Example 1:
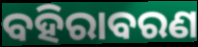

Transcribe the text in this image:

ବହିରାବରଣ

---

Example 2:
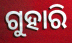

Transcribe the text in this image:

ଗୁହାରି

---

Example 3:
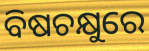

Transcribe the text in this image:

ବିଷଚକ୍ଷୁରେ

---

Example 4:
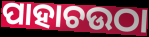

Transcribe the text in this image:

ପାହାଚଉଠା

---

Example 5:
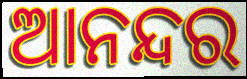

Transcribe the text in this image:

ଆନନ୍ଦର